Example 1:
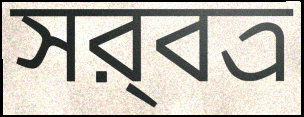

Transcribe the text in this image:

সর্‍বত্র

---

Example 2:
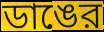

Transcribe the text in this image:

ডাঙের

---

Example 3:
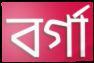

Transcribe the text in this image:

বর্গা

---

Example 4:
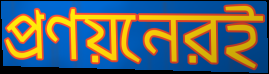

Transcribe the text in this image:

প্রণয়নেরই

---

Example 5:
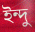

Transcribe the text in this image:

ইন্দু